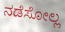
ನಡೆಸೋಲ್ಲ